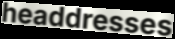
headdresses